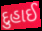
દુહાઈ